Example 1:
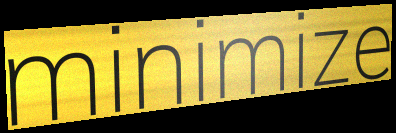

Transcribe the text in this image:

minimize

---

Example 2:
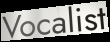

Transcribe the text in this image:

Vocalist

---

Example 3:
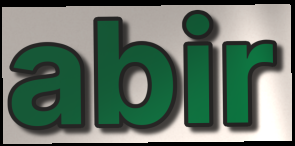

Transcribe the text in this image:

abir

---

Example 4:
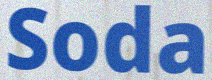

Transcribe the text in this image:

Soda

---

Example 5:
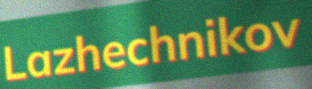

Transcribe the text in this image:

Lazhechnikov